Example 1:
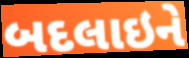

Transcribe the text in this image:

બદલાઇને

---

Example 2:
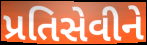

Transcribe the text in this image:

પ્રતિસેવીને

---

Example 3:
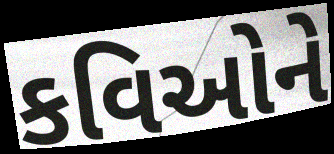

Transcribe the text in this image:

કવિઓને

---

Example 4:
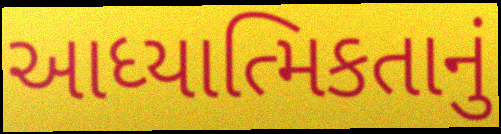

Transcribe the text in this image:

આધ્યાત્મિકતાનું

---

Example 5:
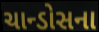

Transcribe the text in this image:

ચાન્ડોસના